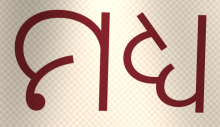
ମଧ୍ୟ